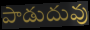
పాడుదువు